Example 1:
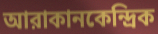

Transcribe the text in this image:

আরাকানকেন্দ্রিক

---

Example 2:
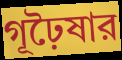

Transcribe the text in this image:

গূঢ়ৈষার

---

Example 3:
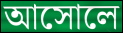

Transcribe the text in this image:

আসোলে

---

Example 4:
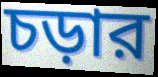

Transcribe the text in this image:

চড়ার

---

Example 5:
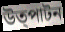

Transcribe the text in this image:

উত্পাটন